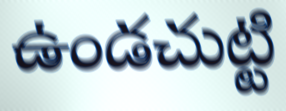
ఉండచుట్టి